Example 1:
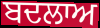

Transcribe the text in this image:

ਬਦਲਾਅ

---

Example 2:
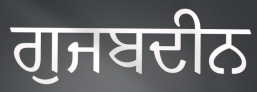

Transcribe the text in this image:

ਗੁਜਬਦੀਨ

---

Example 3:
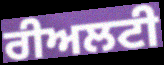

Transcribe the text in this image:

ਰੀਅਲਟੀ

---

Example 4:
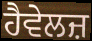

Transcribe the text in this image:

ਹੈਵੇਲਜ਼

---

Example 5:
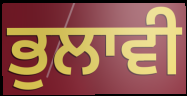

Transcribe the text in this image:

ਭੁਲਾਵੀ